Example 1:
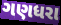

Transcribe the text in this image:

ગણધરા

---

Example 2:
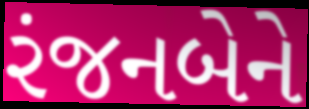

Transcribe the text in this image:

રંજનબેને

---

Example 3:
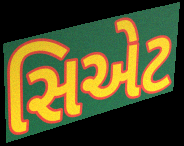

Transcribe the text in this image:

સિએટ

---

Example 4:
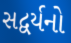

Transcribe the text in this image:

સદ્વર્યનો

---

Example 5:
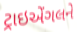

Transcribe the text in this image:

ટ્રાઇએંગલને